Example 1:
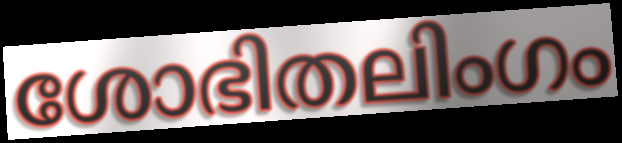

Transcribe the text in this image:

ശോഭിതലിംഗം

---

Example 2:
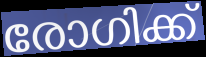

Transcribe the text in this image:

രോഗിക്ക്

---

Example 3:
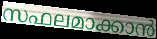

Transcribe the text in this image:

സഫലമാക്കാൻ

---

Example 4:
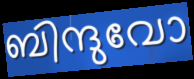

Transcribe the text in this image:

ബിന്ദുവോ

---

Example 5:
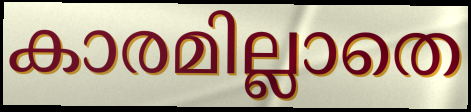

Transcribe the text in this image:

കാരമില്ലാതെ